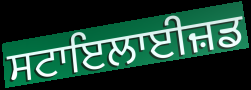
ਸਟਾਇਲਾਈਜ਼ਡ